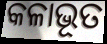
କଳାଭୂତ